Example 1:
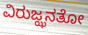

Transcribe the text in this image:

ವಿರುಜ್ಝನತೋ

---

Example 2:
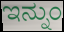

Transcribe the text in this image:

ಇನ್ನುಂ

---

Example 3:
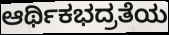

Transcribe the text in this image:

ಆರ್ಥಿಕಭದ್ರತೆಯ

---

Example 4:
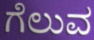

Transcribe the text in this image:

ಗೆಲುವ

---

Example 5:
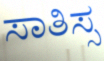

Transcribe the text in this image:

ಸಾತಿಸ್ಸ